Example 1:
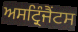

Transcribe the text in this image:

ਅਸਟ੍ਰਿੰਜੈਂਟਸ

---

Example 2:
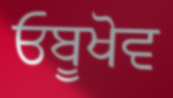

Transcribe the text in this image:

ਓਬੂਖੋਵ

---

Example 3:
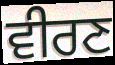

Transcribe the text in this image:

ਵੀਰਣ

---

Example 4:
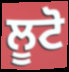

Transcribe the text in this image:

ਲੂਟੋ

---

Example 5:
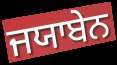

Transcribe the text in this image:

ਜਯਾਬੇਨ